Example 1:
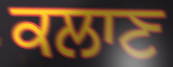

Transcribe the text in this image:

ਕਲਾਣ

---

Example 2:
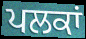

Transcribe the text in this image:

ਪਲਕਾਂ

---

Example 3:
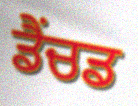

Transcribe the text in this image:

ਡੈਂਚਡ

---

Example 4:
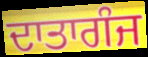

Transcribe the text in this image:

ਦਾਤਾਗੰਜ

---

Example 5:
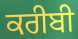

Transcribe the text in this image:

ਕਰੀਬੀ